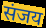
संजय